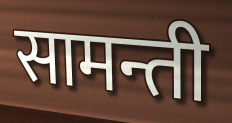
सामन्ती